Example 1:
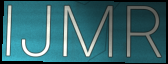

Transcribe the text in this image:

IJMR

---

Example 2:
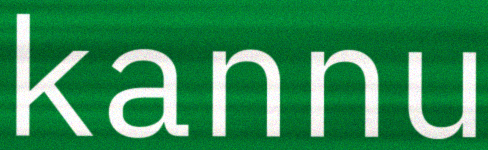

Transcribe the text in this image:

kannu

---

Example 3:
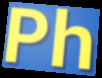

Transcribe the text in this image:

Ph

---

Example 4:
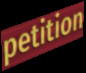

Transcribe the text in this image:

petition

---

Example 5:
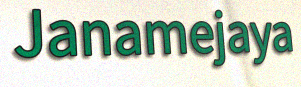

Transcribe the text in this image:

Janamejaya